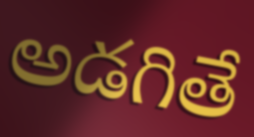
అడగితే